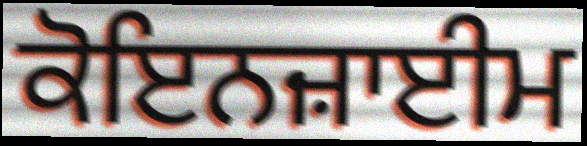
ਕੋਇਨਜ਼ਾਈਮ